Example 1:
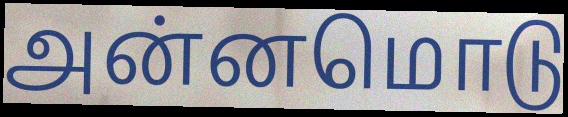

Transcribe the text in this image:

அன்னமொடு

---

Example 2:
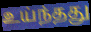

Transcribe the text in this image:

உய்ந்தது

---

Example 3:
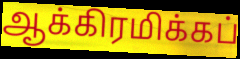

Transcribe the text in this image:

ஆக்கிரமிக்கப்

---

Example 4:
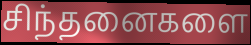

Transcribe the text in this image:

சிந்தனைகளை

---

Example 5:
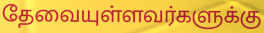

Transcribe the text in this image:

தேவையுள்ளவர்களுக்கு